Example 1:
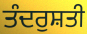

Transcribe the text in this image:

ਤੰਦਰੁਸ਼ਤੀ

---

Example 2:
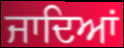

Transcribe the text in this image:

ਜਾਦਿਆਂ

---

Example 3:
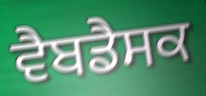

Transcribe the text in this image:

ਵੈਬਡੈਸਕ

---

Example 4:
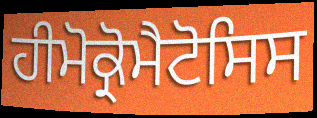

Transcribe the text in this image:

ਹੀਮੋਕ੍ਰੋਮੈਟੋਸਿਸ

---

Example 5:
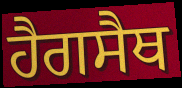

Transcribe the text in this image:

ਹੈਗਸੈਥ